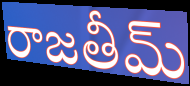
రాజతీమ్